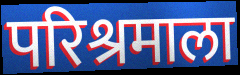
परिश्रमाला